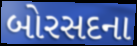
બોરસદના